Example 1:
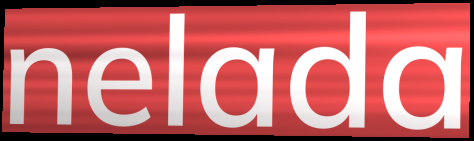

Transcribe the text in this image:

nelada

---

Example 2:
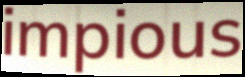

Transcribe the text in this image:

impious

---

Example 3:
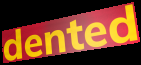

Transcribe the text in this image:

dented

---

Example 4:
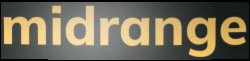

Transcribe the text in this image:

midrange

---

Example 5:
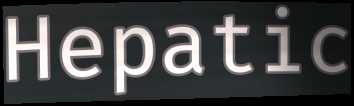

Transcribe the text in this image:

Hepatic